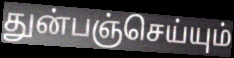
துன்பஞ்செய்யும்